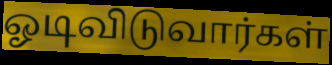
ஓடிவிடுவார்கள்